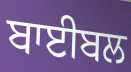
ਬਾਈਬਲ